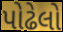
પોઢેલો